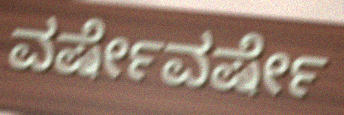
ವರ್ಷೇವರ್ಷೇ